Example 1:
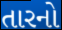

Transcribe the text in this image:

તારનો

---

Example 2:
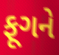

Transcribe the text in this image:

ફૂગને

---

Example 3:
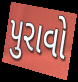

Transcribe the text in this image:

પુરાવો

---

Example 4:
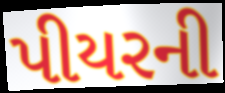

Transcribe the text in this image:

પીયરની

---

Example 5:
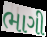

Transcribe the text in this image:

ભાગી